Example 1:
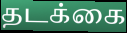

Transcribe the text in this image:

தடக்கை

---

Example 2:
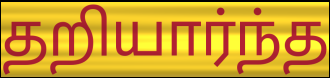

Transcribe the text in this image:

தறியார்ந்த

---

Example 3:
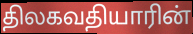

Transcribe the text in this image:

திலகவதியாரின்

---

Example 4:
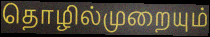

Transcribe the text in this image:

தொழில்முறையும்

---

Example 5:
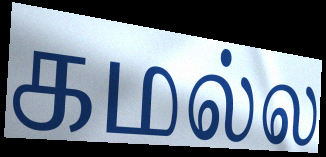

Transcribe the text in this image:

கமல்ல